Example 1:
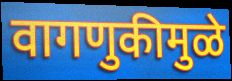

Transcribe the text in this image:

वागणुकीमुळे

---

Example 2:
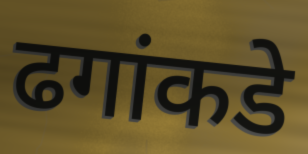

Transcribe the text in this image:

ढगांकडे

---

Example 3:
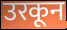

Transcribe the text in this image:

उरकून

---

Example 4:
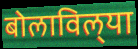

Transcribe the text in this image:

बोलाविल्या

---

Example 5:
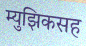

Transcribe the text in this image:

म्युझिकसह